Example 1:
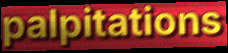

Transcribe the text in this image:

palpitations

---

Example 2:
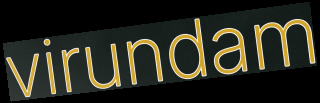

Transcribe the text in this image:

virundam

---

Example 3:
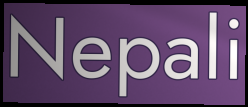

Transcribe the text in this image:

Nepali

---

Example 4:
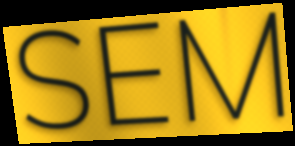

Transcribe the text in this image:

SEM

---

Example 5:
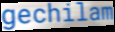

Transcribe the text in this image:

gechilam